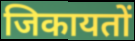
जिकायतों